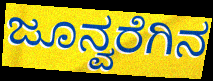
ಜೂನ್ವರೆಗಿನ